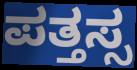
ಪತ್ತಸ್ಸ